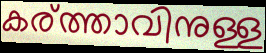
കര്ത്താവിനുള്ള